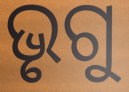
ଭୃଗୁ